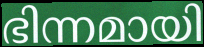
ഭിന്നമായി